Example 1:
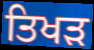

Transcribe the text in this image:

ਤਿਖੜ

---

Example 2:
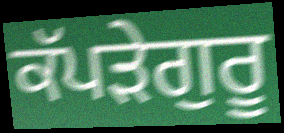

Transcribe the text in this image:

ਕੱਪੜੇਗੁਰੂ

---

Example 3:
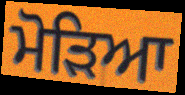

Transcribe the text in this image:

ਮੋੜਿਆ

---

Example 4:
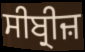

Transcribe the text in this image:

ਸੀਬ੍ਰੀਜ਼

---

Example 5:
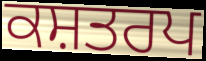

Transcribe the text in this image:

ਕਸ਼ਤਰਪ